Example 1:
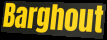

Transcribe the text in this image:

Barghout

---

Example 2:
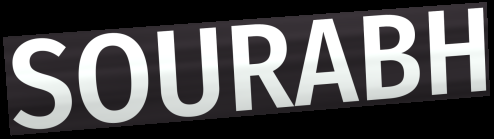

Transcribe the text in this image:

SOURABH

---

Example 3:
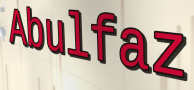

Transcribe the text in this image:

Abulfaz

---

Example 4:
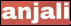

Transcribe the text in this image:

anjali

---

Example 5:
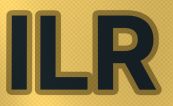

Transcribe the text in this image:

ILR